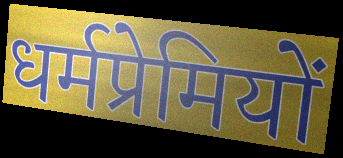
धर्मप्रेमियों